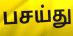
பசய்து